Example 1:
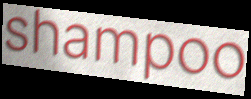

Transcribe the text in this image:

shampoo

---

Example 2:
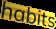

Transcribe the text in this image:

habits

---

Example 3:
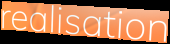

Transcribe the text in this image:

realisation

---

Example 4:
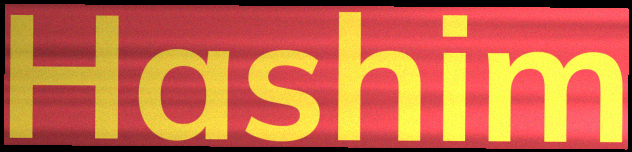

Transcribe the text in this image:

Hashim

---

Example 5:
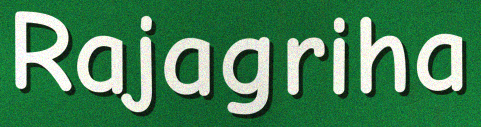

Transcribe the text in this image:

Rajagriha